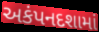
અકંપનદશામાં